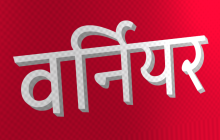
वर्नियर